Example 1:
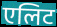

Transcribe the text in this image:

एलिट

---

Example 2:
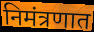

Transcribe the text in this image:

निमंत्रणात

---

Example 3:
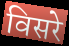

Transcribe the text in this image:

विसरे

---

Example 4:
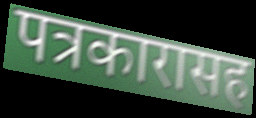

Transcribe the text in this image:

पत्रकारासह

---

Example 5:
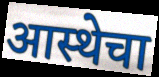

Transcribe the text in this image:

आस्थेचा